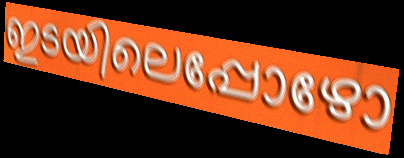
ഇടയിലെപ്പോഴോ